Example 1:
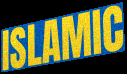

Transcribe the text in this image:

ISLAMIC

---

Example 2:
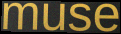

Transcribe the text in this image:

muse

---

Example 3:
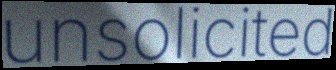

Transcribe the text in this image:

unsolicited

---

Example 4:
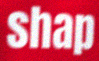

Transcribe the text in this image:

shap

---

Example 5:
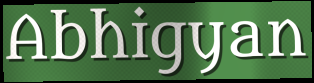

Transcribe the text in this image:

Abhigyan